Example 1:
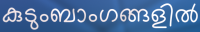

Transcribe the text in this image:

കുടുംബാംഗങ്ങളിൽ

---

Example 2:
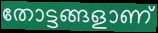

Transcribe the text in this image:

തോട്ടങ്ങളാണ്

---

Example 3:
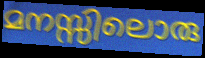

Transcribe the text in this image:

മനസ്സിലൊരു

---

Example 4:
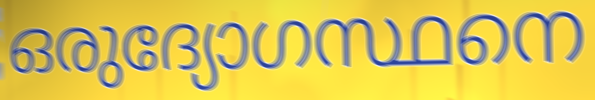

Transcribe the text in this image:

ഒരുദ്യോഗസ്ഥനെ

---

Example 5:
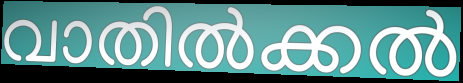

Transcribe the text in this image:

വാതിൽക്കൽ